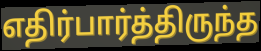
எதிர்பார்த்திருந்த